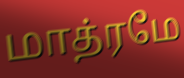
மாத்ரமே